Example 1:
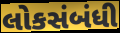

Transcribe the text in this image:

લોકસંબંધી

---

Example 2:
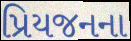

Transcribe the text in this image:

પ્રિયજનના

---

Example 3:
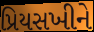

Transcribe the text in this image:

પ્રિયસખીને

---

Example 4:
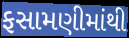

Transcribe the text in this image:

ફસામણીમાંથી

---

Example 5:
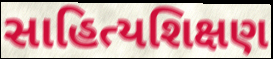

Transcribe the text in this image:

સાહિત્યશિક્ષણ